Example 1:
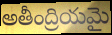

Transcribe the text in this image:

అతీంద్రియమై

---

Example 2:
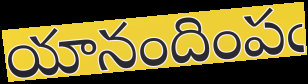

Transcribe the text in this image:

యానందింపఁ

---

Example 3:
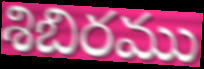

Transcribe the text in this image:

శిబిరము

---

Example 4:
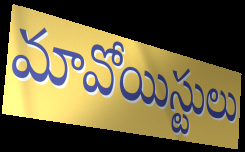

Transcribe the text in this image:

మావోయిస్టులు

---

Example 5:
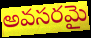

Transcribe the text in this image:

అవసరమై